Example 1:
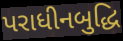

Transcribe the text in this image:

પરાધીનબુદ્ધિ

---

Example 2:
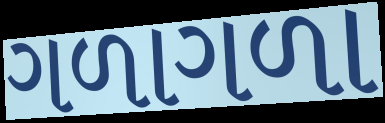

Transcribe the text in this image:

ગળાગળા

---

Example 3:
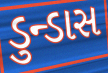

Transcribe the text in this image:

ડુન્ડાસ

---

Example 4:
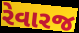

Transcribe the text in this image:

રેવારજ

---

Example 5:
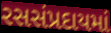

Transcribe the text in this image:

રસસંપ્રદાયમાં